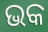
ଭକ